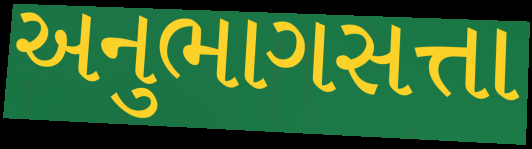
અનુભાગસત્તા